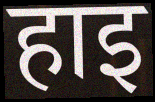
हाइ